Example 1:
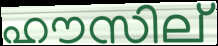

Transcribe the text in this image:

ഹൗസില്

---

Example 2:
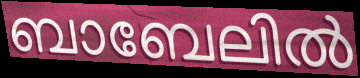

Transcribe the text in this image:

ബാബേലിൽ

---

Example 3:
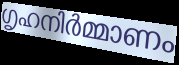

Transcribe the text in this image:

ഗൃഹനിർമ്മാണം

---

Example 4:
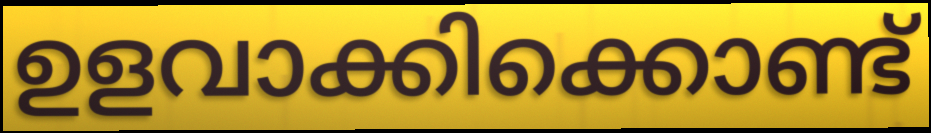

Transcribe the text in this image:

ഉളവാക്കിക്കൊണ്ട്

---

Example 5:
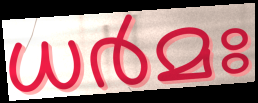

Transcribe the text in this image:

ധർമഃ